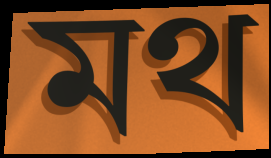
মথ